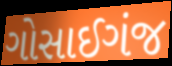
ગોસાઈગંજ